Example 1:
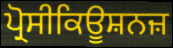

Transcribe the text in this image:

ਪ੍ਰੋਸੀਕਿਊਸ਼ਨਜ਼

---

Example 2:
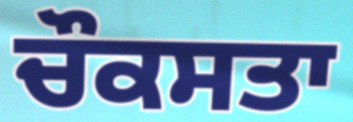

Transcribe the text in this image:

ਚੌਕਸਤਾ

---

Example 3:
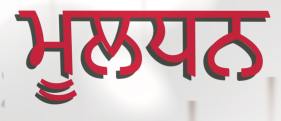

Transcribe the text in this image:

ਮੂਲਧਨ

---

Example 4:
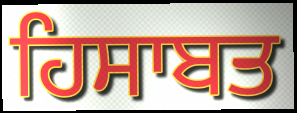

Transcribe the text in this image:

ਹਿਸਾਬਤ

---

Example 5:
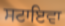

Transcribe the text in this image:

ਸਟਾਇਵਾ